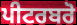
ਪੀਟਰਬਰੋ